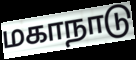
மகாநாடு